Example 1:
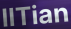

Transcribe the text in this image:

IITian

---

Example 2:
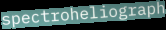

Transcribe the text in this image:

spectroheliograph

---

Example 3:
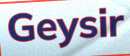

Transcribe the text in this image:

Geysir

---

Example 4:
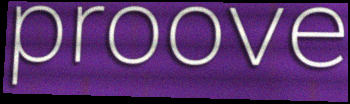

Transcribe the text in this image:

proove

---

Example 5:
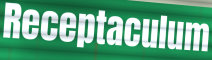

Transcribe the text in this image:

Receptaculum